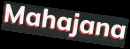
Mahajana